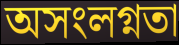
অসংলগ্নতা